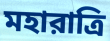
মহারাত্রি